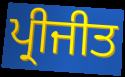
ਪ੍ਰੀਜੀਤ